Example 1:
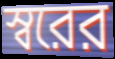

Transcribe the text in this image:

স্বরের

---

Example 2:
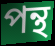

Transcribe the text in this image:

পন্থ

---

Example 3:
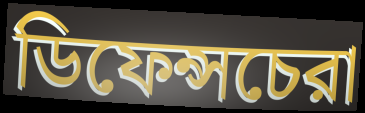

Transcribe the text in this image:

ডিফেন্সচেরা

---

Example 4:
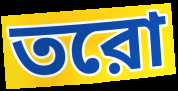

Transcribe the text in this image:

তরো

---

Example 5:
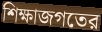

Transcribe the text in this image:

শিক্ষাজগতের